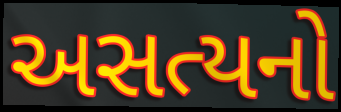
અસત્યનો